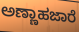
ಅಣ್ಣಾಹಜಾರೆ